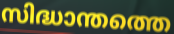
സിദ്ധാന്തത്തെ